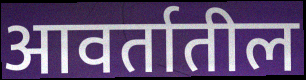
आवर्तातील